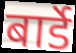
बार्डे